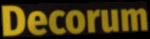
Decorum